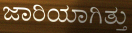
ಜಾರಿಯಾಗಿತ್ತು